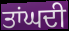
ਤਾਂਘਦੀ